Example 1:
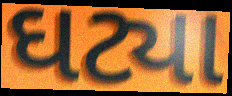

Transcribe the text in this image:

ઘટ્યા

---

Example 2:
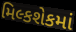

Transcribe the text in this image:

મિલ્કશેકમાં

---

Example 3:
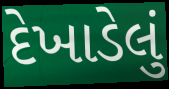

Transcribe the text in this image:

દેખાડેલું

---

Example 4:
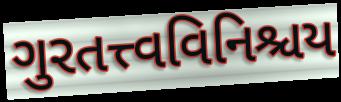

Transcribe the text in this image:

ગુરતત્ત્વવિનિશ્ચય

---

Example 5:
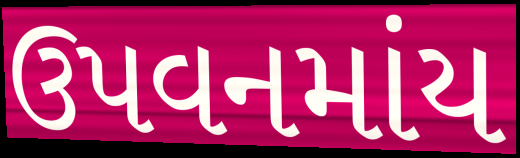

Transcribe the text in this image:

ઉપવનમાંય